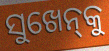
ସୁଖେନ୍‌କୁ